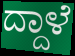
ದ್ದಾಳೆ